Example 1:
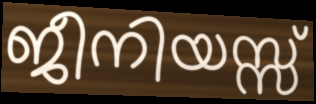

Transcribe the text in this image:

ജീനിയസ്സ്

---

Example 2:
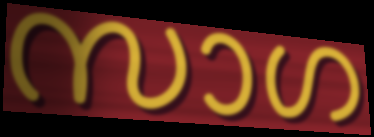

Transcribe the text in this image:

സാഗ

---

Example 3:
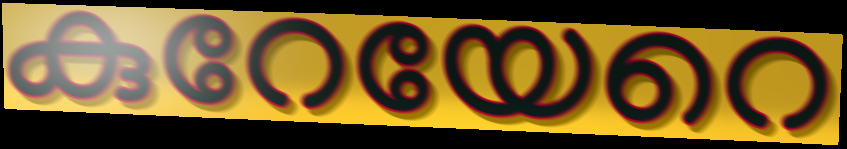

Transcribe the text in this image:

കുറേയേറെ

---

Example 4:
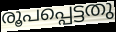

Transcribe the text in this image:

രൂപപ്പെട്ടതു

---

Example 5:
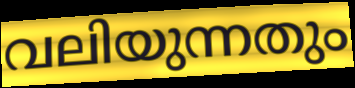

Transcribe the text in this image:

വലിയുന്നതും